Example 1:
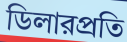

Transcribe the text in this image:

ডিলারপ্রতি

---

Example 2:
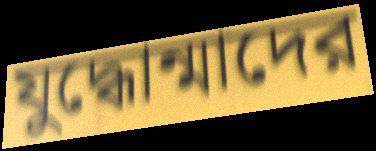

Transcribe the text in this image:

যুদ্ধোন্মাদের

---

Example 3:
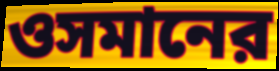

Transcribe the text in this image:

ওসমানের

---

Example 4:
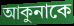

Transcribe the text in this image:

আকুনাকে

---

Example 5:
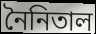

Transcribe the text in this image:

নৈনিতাল